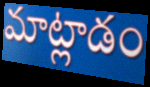
మాట్లాడం